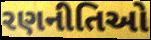
રણનીતિઓ